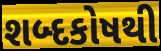
શબ્દકોષથી